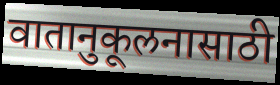
वातानुकूलनासाठी